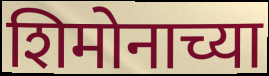
शिमोनाच्या